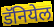
डॅनियेल